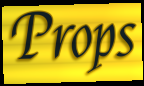
Props